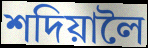
শদিয়ালৈ